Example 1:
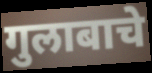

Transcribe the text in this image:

गुलाबाचे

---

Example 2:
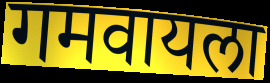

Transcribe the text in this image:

गमवायला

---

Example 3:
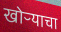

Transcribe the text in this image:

खोऱ्याचा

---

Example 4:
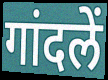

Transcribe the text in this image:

गांदलें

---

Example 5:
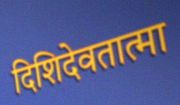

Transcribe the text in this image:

दिशिदेवतात्मा